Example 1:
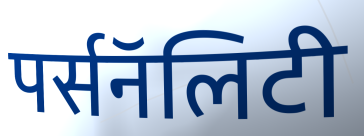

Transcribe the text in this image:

पर्सनॅलिटी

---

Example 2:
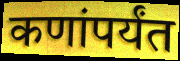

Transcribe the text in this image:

कणांपर्यंत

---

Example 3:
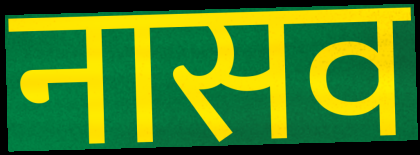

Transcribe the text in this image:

नासव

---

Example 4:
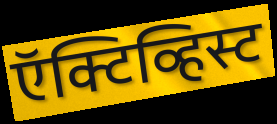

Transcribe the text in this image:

ऍक्टिव्हिस्ट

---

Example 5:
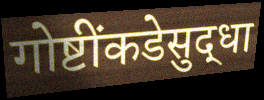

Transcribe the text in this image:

गोष्टींकडेसुद्धा